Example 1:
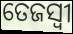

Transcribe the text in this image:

ତେଜସ୍ବୀ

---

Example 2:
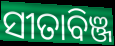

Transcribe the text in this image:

ସୀତାବିଞ୍ଜ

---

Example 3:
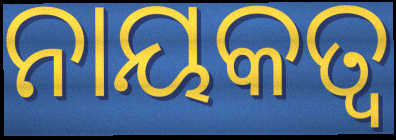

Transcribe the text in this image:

ନାୟକତ୍ୱ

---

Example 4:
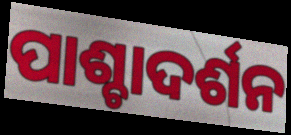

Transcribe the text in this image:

ପାଶ୍ଚାଦର୍ଶନ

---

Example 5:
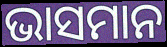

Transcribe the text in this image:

ଭାସମାନ